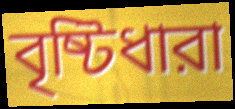
বৃষ্টিধারা